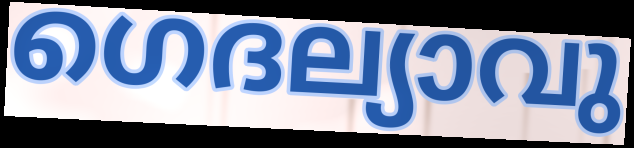
ഗെദല്യാവു